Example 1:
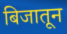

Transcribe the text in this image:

बिजातून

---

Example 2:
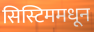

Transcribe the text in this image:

सिस्टिममधून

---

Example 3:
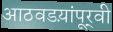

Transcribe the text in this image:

आठवडय़ांपूर्वी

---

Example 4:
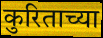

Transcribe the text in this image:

कुरिताच्या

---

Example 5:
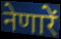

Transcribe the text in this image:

नेणारें